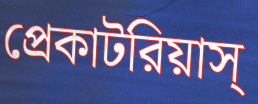
প্রেকাটরিয়াস্